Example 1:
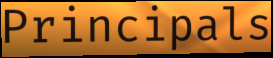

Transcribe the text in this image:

Principals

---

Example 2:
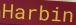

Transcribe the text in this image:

Harbin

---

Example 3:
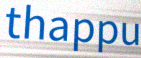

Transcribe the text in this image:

thappu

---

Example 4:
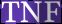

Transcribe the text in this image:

TNF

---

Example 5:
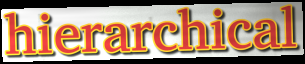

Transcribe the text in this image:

hierarchical